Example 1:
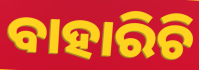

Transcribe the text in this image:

ବାହାରିଚି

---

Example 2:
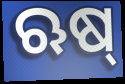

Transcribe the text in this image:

ଋଷ୍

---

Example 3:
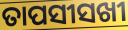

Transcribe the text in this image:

ତାପସୀସଖୀ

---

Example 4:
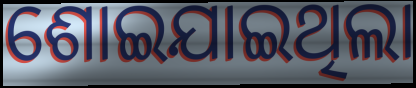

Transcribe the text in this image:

ଶୋଇଯାଇଥିଲା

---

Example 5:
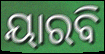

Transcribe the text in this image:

ୟାରବି